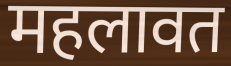
महलावत